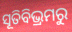
ସୂତିବିଭ୍ରମରୁ